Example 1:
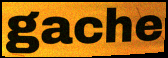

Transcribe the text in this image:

gache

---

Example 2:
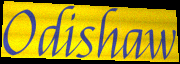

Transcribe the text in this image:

Odishaw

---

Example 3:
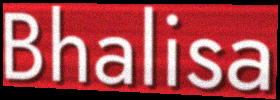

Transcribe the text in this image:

Bhalisa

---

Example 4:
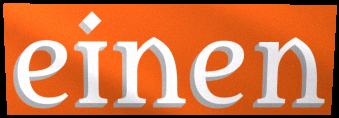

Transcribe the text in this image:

einen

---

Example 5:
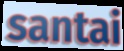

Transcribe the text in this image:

santai